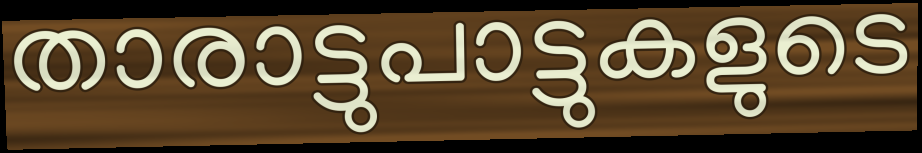
താരാട്ടുപാട്ടുകളുടെ